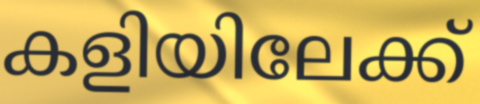
കളിയിലേക്ക്